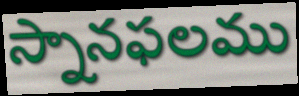
స్నానఫలము